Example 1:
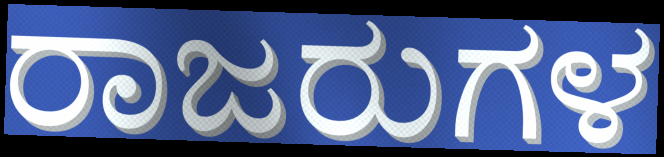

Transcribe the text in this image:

ರಾಜರುಗಳ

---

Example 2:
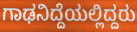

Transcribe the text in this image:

ಗಾಢನಿದ್ದೆಯಲ್ಲಿದ್ದರು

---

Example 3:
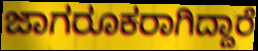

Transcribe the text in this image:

ಜಾಗರೂಕರಾಗಿದ್ದಾರೆ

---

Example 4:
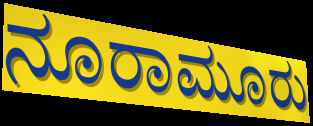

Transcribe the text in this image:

ನೂರಾಮೂರು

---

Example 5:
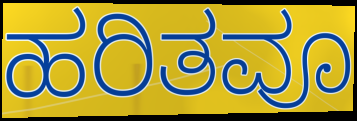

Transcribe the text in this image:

ಹರಿತವೂ